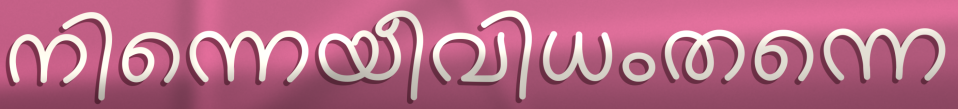
നിന്നെയീവിധംതന്നെ